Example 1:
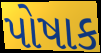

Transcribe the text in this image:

પોષાક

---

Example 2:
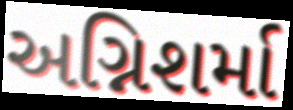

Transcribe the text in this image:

અગ્નિશર્મા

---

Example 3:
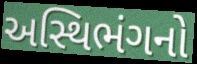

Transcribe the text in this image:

અસ્થિભંગનો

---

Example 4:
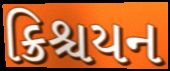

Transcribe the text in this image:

ક્રિશ્ચયન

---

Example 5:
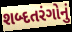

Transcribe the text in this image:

શબ્દતરંગોનું